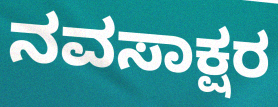
ನವಸಾಕ್ಷರ